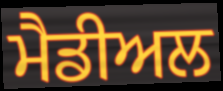
ਮੈਡੀਅਲ